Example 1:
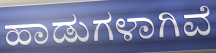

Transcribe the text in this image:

ಹಾಡುಗಳಾಗಿವೆ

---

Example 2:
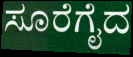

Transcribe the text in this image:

ಸೂರೆಗೈದ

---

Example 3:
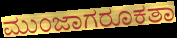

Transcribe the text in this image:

ಮುಂಜಾಗರೂಕತಾ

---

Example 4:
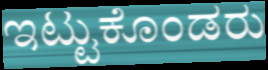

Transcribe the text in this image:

ಇಟ್ಟುಕೊಂಡರು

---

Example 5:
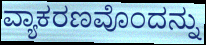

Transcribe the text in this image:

ವ್ಯಾಕರಣವೊಂದನ್ನು